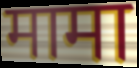
मामा